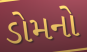
ડોમનો